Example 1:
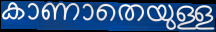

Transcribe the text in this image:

കാണാതെയുള്ള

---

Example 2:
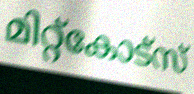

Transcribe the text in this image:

മിറ്റ്കോട്സ്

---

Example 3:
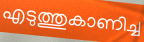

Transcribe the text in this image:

എടുത്തുകാണിച്ച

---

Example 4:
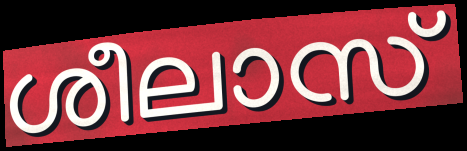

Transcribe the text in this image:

ശീലാസ്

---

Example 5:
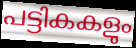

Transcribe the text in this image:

പട്ടികകളും